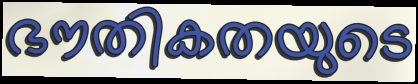
ഭൗതികതയുടെ